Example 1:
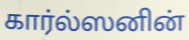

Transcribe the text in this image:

கார்ல்ஸனின்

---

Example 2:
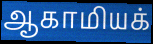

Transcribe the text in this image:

ஆகாமியக்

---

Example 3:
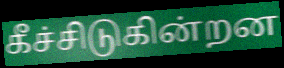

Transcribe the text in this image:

கீச்சிடுகின்றன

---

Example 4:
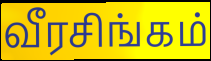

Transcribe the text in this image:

வீரசிங்கம்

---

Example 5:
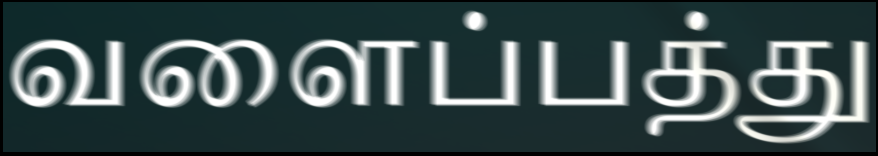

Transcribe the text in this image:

வளைப்பத்து